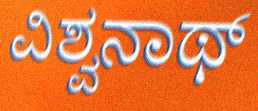
ವಿಶ್ವನಾಥ್